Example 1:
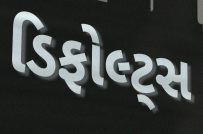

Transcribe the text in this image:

ડિફોલ્ટ્સ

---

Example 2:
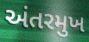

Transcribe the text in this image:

અંતરમુખ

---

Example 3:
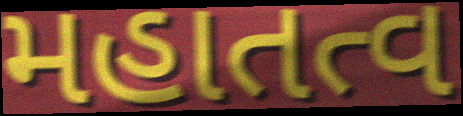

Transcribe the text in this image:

મહાતત્વ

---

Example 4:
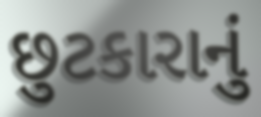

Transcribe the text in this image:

છુટકારાનું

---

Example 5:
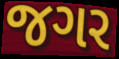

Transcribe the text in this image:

જગર